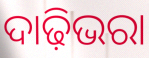
ଦାଢ଼ିଭରା